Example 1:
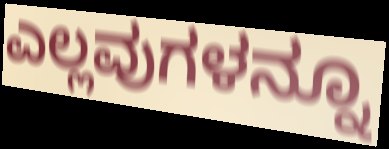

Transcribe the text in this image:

ಎಲ್ಲವುಗಳನ್ನೂ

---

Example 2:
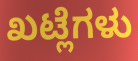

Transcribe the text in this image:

ಖಟ್ಲೆಗಳು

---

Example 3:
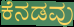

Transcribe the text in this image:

ಕೆನಡವು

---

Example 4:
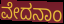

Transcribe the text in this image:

ವೇದನಾಂ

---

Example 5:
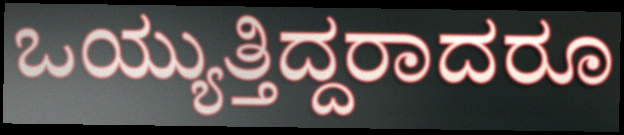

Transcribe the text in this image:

ಒಯ್ಯುತ್ತಿದ್ದರಾದರೂ